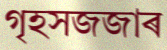
গৃহসজজাৰ